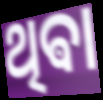
ଥିଵା